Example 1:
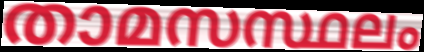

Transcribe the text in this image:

താമസസ്ഥലം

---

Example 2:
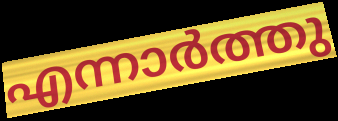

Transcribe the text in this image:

എന്നാർത്തു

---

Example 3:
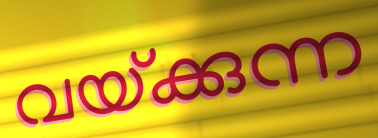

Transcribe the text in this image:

വയ്‌ക്കുന്ന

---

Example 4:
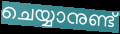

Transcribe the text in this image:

ചെയ്യാനുണ്ട്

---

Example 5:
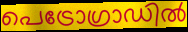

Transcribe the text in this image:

പെട്രോഗ്രാഡിൽ